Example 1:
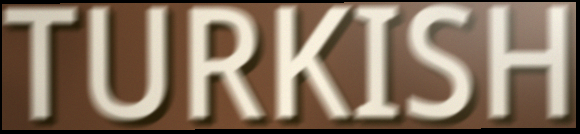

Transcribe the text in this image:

TURKISH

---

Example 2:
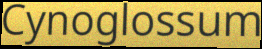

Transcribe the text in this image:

Cynoglossum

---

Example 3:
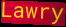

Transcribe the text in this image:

Lawry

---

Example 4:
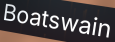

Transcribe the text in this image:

Boatswain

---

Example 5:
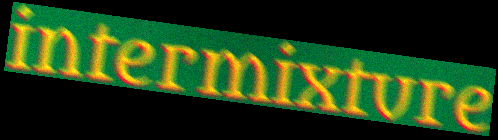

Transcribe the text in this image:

intermixture